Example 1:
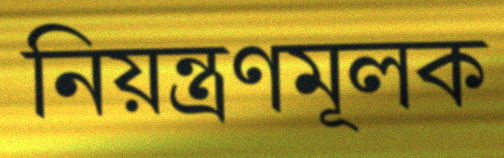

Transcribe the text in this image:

নিয়ন্ত্রণমূলক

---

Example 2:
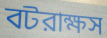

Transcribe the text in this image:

বটরাক্ষস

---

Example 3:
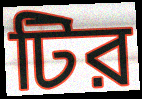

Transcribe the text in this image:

টির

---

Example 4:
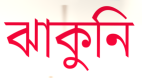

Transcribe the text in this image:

ঝাকুনি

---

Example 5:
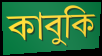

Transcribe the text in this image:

কাবুকি